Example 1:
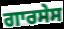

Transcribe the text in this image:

ਗਾਰਸੇਸ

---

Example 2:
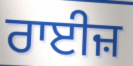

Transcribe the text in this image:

ਰਾਈਜ਼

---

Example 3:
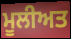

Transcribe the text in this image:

ਮੂਲੀਅਤ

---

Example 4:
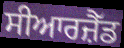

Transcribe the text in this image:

ਸੀਆਰਜ਼ੈੱਡ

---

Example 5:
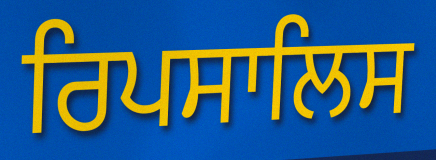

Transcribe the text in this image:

ਰਿਪਸਾਲਿਸ